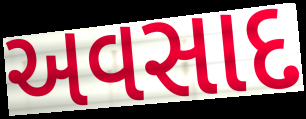
અવસાદ